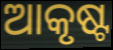
ଆକୃଷ୍ଟ